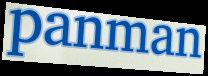
panman